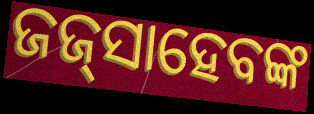
ଜଜ୍‌ସାହେବଙ୍କ